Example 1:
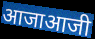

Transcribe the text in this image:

आजाआजी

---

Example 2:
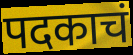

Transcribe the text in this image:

पदकाचं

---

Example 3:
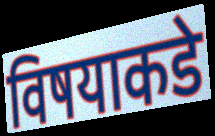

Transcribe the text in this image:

विषयाकडे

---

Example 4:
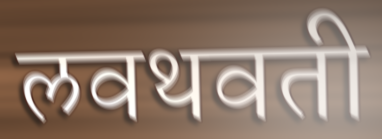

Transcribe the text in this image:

लवथवती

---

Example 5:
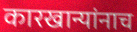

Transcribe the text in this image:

कारखान्यांनाच